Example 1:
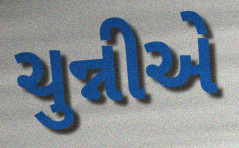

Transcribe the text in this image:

ચુન્નીએ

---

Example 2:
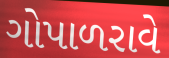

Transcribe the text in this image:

ગોપાળરાવે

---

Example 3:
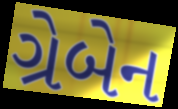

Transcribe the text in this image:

ગ્રેબેન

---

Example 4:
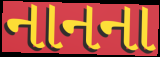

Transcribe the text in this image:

નાનના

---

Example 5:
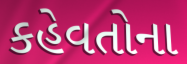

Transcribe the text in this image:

કહેવતોના